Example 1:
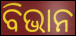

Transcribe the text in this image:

ବିଭାନ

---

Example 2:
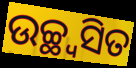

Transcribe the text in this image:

ଉଚ୍ଛ୍ୱସିତ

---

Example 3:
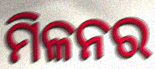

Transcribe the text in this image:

ମିଳନର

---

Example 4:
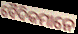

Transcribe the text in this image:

ବୈଦିକମାନେ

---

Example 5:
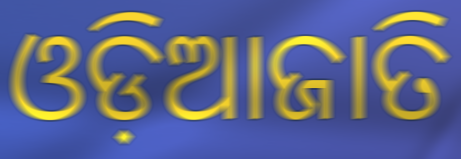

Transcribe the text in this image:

ଓଡ଼ିଆଜାତି